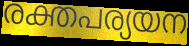
രക്തപര്യയന